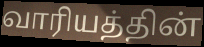
வாரியத்தின்